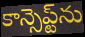
కాన్సెప్ట్‌ను